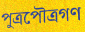
পুত্রপৌত্রগণ